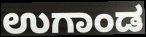
ಉಗಾಂಡ